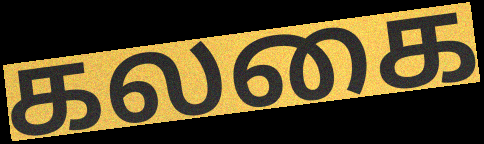
கலகை